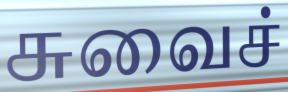
சுவைச்